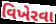
વિખેરવા